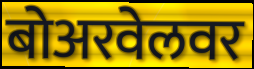
बोअरवेलवर